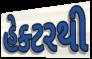
હેક્ટરથી